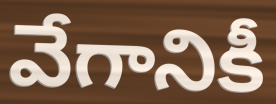
వేగానికీ